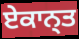
ਏਕਾਨ੍ਤ